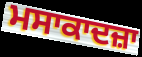
ਮਸਾਕਾਦਜ਼ਾ